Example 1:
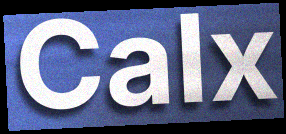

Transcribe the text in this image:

Calx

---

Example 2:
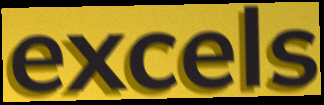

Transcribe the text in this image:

excels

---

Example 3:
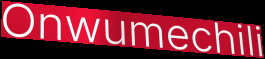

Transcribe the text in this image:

Onwumechili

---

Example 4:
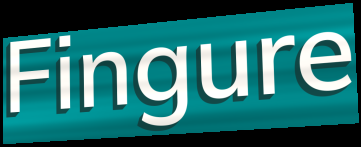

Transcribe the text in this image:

Fingure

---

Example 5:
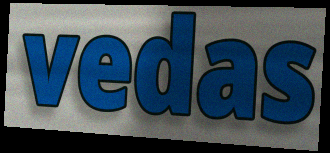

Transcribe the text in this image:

vedas